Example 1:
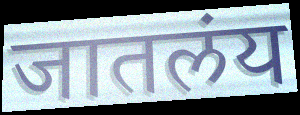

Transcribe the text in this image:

जातलंय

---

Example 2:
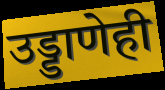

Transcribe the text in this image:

उड्डाणेही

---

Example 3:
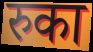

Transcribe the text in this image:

रुका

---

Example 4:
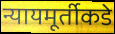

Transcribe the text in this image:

न्यायमूर्तीकडे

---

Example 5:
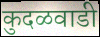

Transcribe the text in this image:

कुदळवाडी